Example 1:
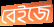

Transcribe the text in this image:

বেইজে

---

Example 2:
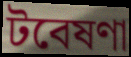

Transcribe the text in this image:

টবেষণা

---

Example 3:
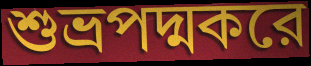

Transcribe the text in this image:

শুভ্রপদ্মকরে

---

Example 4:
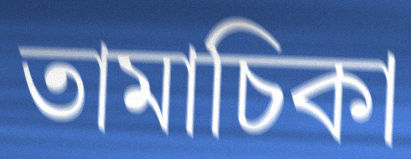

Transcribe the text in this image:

তামাচিকা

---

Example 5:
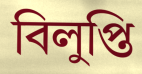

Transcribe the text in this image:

বিলুপ্তি